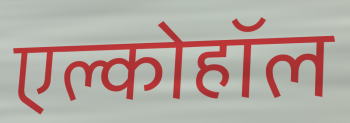
एल्कोहॉल